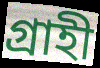
গ্রাহী